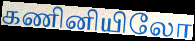
கணினியிலோ